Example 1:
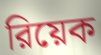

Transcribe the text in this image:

রিয়েক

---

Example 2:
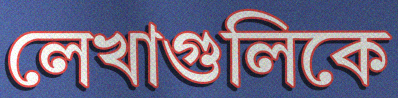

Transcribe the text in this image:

লেখাগুলিকে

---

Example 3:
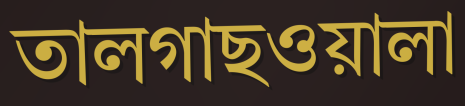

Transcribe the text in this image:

তালগাছওয়ালা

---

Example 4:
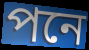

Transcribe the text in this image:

পনে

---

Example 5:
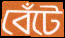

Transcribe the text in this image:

বেঁটে